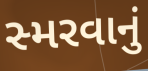
સ્મરવાનું